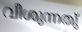
വീശുന്നതു്